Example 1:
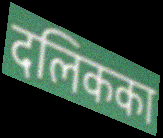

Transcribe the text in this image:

दलिकका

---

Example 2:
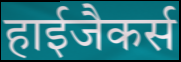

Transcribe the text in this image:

हाईजैकर्स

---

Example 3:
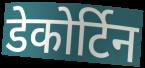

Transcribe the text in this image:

डेकोर्टिन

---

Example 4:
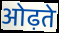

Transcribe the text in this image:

ओढ़ते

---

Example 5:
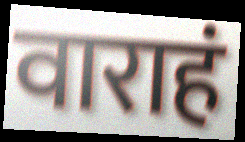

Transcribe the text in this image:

वाराहं